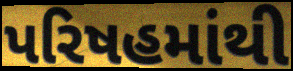
પરિષહમાંથી